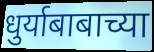
धुर्याबाबाच्या